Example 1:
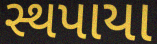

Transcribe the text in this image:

સ્થપાયા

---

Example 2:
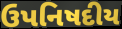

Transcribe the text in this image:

ઉપનિષદીય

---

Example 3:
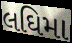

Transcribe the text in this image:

લઘિમા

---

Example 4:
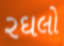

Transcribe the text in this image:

રઘલો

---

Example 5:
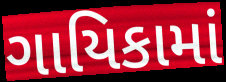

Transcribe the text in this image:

ગાયિકામાં